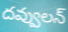
దవ్వులన్